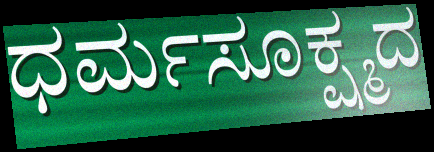
ಧರ್ಮಸೂಕ್ಷ್ಮದ